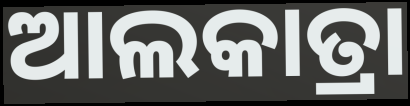
ଆଲକାତ୍ରା